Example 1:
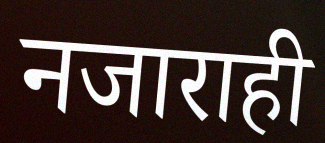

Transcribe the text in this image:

नजाराही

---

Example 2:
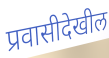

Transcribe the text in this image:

प्रवासीदेखील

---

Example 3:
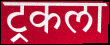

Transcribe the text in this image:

ट्रकला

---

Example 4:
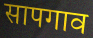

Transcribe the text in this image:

सापगाव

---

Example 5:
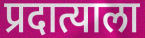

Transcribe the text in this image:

प्रदात्याला